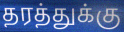
தரத்துக்கு